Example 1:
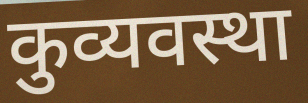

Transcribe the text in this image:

कुव्यवस्था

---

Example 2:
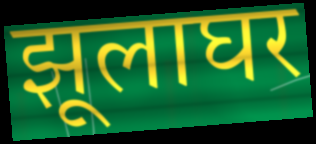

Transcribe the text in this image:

झूलाघर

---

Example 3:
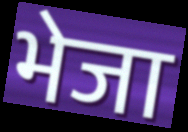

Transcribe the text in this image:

भेजा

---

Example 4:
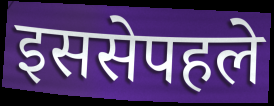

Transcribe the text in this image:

इससेपहले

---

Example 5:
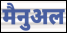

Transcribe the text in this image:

मैनुअल